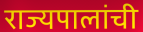
राज्यपालांची